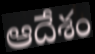
ఆదేశం